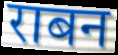
राबन